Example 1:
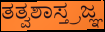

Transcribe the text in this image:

ತತ್ವಶಾಸ್ತ್ರಜ್ಞ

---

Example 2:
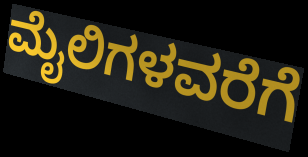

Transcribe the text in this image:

ಮೈಲಿಗಳವರೆಗೆ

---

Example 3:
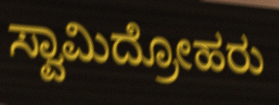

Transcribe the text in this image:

ಸ್ವಾಮಿದ್ರೋಹರು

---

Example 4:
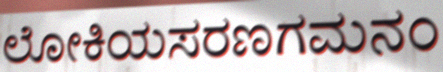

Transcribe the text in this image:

ಲೋಕಿಯಸರಣಗಮನಂ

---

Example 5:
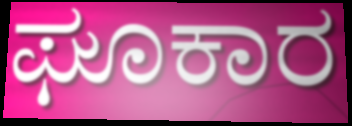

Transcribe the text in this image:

ಘೂಕಾರ